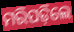
ମରିପଡ଼ିଲେ